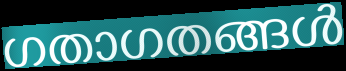
ഗതാഗതങ്ങൾ